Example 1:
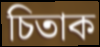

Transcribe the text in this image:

চিতাক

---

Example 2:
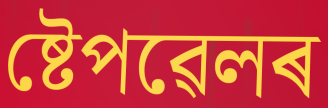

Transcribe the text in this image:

ষ্টেপৱেলৰ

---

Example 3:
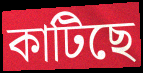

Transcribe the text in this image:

কাটিছে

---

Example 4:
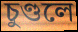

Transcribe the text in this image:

চুণ্ডলে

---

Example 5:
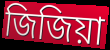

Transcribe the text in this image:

জিজিয়া